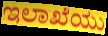
ಇಲಾಖೆಯು